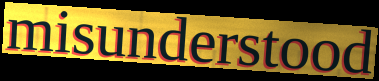
misunderstood